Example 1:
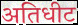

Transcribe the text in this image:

अतिधीट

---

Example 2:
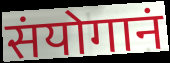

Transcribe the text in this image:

संयोगानं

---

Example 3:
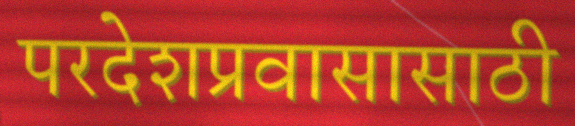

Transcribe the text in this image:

परदेशप्रवासासाठी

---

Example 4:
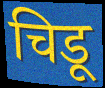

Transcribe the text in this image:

चिडू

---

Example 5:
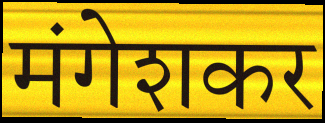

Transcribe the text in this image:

मंगेशकर